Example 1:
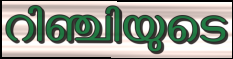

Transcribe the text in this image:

റിഞ്ചിയുടെ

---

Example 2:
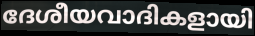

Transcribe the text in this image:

ദേശീയവാദികളായി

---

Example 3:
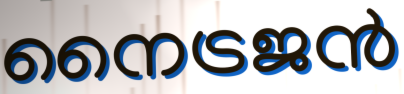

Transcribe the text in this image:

നൈട്രജൻ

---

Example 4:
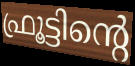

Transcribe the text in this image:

ഫ്രൂട്ടിന്റെ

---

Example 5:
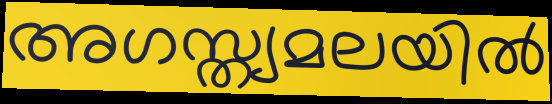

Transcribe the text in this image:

അഗസ്ത്യമലയിൽ